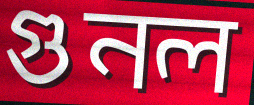
গুনল